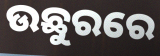
ଉଛୁରରେ